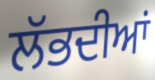
ਲੱਭਦੀਆਂ